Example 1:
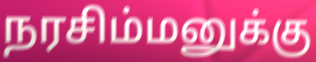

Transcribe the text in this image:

நரசிம்மனுக்கு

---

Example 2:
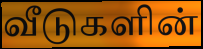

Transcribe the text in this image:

வீடுகளின்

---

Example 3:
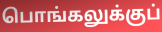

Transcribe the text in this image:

பொங்கலுக்குப்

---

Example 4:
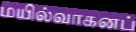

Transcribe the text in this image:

மயில்வாகனப்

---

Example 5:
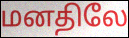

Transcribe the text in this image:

மனதிலே